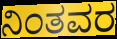
ನಿಂತವರ